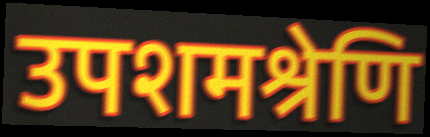
उपशमश्रेणि